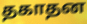
தகாதன